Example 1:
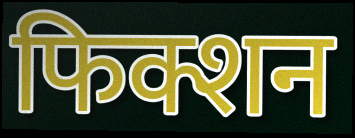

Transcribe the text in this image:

फिक्शन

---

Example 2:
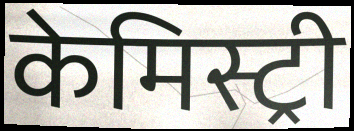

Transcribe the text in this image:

केमिस्ट्री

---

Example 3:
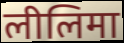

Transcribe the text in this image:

लीलिमा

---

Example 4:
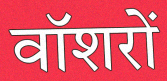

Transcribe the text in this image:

वॉशरों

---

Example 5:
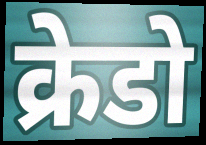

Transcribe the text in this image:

क्रेडो